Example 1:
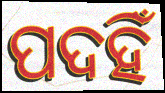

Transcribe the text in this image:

ପଦହିଁ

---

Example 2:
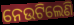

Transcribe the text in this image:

ନେଉଟିଲେଣି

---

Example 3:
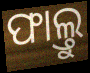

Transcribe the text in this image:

ଫାଲ୍ତୁ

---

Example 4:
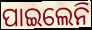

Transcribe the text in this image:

ପାଇଲେନି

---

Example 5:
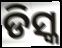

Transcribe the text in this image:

ଡିସ୍କ